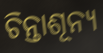
ଚିନ୍ତାଶୂନ୍ୟ